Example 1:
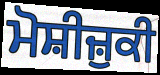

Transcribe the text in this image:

ਮੋਸ਼ੀਜ਼ੁਕੀ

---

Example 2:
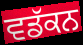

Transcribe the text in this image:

ਵਡੱਕਨ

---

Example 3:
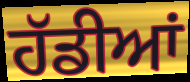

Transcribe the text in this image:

ਹੱਡੀਆਂ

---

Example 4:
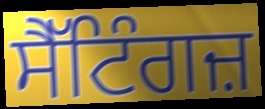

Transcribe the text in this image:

ਸੈੱਟਿੰਗਜ਼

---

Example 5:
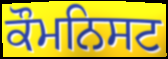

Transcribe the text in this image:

ਕੌਮਨਿਸਟ